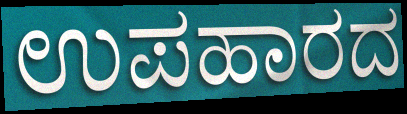
ಉಪಹಾರದ